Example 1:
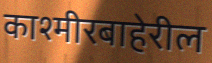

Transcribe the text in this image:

काश्मीरबाहेरील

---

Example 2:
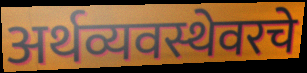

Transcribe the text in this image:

अर्थव्यवस्थेवरचे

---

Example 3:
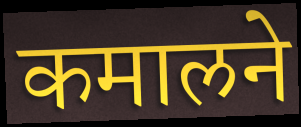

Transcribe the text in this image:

कमालने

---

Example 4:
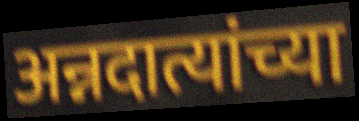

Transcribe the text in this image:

अन्नदात्यांच्या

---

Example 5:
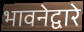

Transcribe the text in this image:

भावनेद्वारे